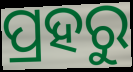
ପ୍ରହରୁ